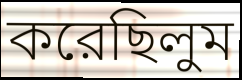
করেছিলুম